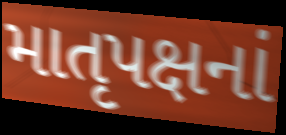
માતૃપક્ષનાં